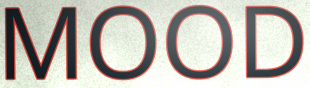
MOOD